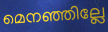
മെനഞ്ഞില്ലേ